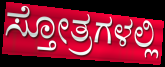
ಸ್ತೋತ್ರಗಳಲ್ಲಿ